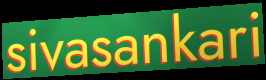
sivasankari